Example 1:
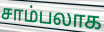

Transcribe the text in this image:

சாம்பலாக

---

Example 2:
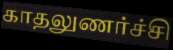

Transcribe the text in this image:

காதலுணர்ச்சி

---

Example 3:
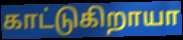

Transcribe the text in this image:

காட்டுகிறாயா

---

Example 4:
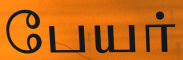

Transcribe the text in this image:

பேயர்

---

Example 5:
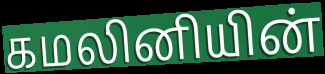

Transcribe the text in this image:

கமலினியின்